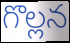
గొల్లన